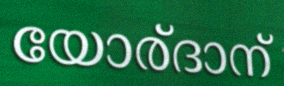
യോര്ദാന്